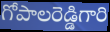
గోపాలరెడ్డిగారి